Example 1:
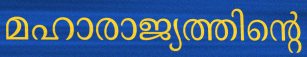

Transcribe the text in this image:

മഹാരാജ്യത്തിന്റെ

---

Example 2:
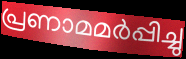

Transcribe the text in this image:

പ്രണാമമർപ്പിച്ചു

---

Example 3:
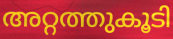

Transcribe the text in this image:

അറ്റത്തുകൂടി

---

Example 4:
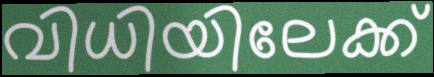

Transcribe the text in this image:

വിധിയിലേക്ക്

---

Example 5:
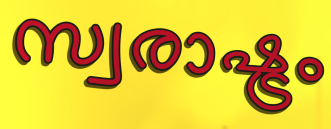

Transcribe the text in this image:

സ്വരാഷ്ട്രം